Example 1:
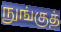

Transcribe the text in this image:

நுங்குத்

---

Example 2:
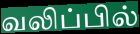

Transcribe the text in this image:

வலிப்பில்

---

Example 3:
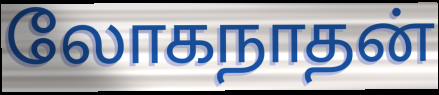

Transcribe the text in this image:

லோகநாதன்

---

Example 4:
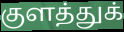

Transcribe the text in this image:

குளத்துக்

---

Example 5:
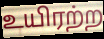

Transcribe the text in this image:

உயிரற்ற